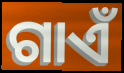
ଗାଏଁ